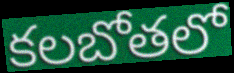
కలబోతలో